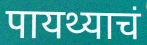
पायथ्याचं